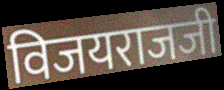
विजयराजजी